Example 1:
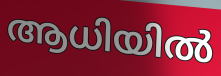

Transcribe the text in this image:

ആധിയിൽ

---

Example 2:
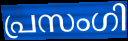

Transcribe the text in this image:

പ്രസംഗി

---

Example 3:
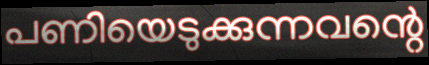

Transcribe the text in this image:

പണിയെടുക്കുന്നവന്റെ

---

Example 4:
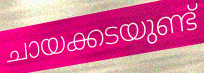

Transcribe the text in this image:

ചായക്കടയുണ്ട്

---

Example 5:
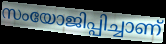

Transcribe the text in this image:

സംയോജിപ്പിച്ചാണ്